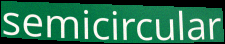
semicircular